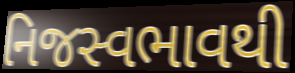
નિજસ્વભાવથી